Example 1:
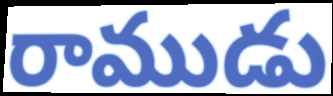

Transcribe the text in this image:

రాముడు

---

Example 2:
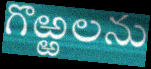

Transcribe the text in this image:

గొఱ్ఱలను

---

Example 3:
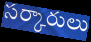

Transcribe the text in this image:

సర్కారులు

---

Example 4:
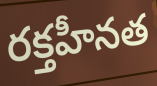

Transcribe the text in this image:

రక్తహీనత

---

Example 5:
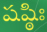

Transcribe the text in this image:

షష్ఠిః